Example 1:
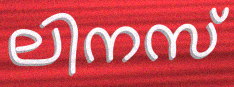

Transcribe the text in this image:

ലിനസ്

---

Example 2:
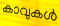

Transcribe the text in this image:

കാവുകൾ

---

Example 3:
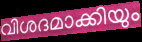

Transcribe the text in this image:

വിശദമാക്കിയും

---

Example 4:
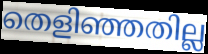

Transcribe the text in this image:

തെളിഞ്ഞതില്ല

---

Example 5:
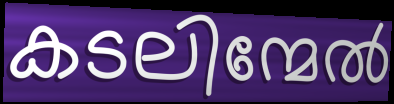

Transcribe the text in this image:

കടലിന്മേൽ